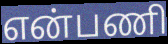
என்பணி